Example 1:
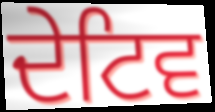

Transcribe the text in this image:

ਦੇਟਿਵ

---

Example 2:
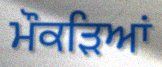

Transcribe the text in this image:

ਮੌਕੜਿਆਂ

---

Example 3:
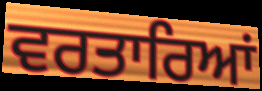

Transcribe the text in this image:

ਵਰਤਾਰਿਆਂ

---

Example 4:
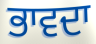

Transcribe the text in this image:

ਭਾਵਦਾ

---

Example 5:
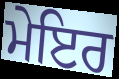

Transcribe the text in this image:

ਮੇਇਰ